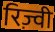
रिज़्वी